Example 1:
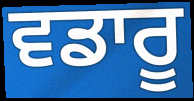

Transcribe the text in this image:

ਵਡਾਰੂ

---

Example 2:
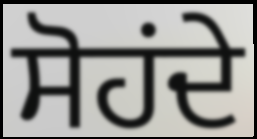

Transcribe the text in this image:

ਸੋਹਂਦੇ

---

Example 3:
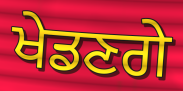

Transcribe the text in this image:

ਖੇਡਣਗੇ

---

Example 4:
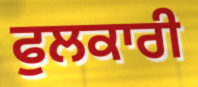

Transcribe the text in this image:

ਫੁਲਕਾਰੀ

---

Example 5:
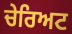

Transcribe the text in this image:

ਚੇਰਿਅਟ